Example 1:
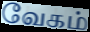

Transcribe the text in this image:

வேகம்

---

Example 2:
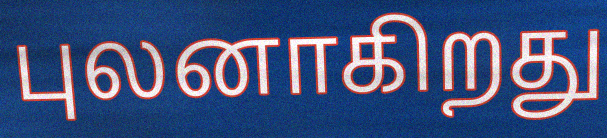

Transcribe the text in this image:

புலனாகிறது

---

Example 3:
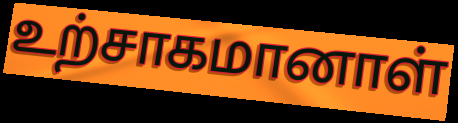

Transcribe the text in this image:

உற்சாகமானாள்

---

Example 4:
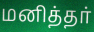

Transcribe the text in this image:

மனித்தர்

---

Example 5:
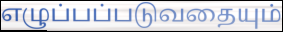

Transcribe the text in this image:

எழுப்பப்படுவதையும்